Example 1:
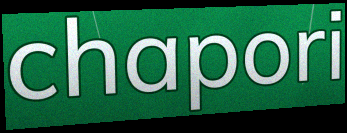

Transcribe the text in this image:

chapori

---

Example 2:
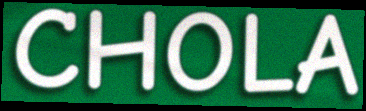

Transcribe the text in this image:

CHOLA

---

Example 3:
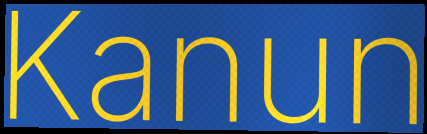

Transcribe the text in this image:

Kanun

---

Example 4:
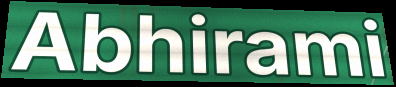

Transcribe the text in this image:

Abhirami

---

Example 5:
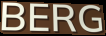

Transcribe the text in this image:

BERG